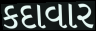
કદાવાર